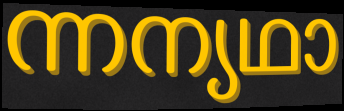
ന്നന്യഥാ